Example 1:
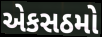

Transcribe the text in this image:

એકસઠમો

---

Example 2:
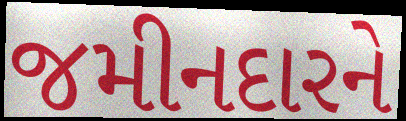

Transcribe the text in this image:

જમીનદારને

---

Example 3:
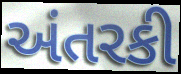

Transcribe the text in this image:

અંતરકી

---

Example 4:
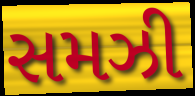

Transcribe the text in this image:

સમઝી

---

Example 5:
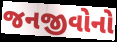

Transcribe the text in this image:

જનજીવોનો